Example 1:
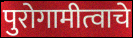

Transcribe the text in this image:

पुरोगामीत्वाचे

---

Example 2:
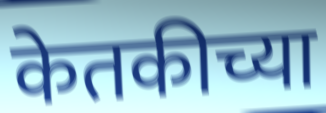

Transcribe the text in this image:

केतकीच्या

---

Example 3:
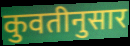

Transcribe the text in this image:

कुवतीनुसार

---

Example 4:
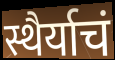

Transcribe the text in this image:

स्थैर्याचं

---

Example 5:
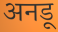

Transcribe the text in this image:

अनडू